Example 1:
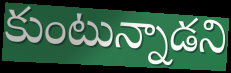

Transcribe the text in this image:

కుంటున్నాడని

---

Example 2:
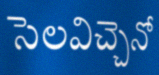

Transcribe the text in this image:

సెలవిచ్చెనో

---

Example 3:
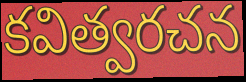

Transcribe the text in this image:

కవిత్వరచన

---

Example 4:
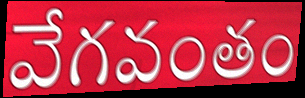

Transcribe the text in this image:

వేగవంతం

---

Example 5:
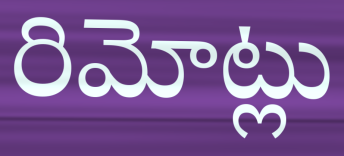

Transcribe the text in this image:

రిమోట్లు